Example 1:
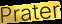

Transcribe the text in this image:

Prater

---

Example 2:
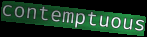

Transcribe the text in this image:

contemptuous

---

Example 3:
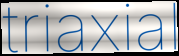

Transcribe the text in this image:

triaxial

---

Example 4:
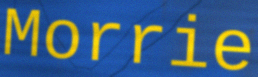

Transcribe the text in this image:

Morrie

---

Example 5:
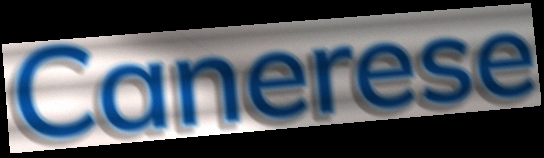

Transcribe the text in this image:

Canerese